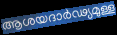
ആശയദാർഢ്യമുള്ള